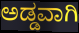
ಅಡ್ಡವಾಗಿ